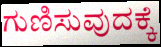
ಗುಣಿಸುವುದಕ್ಕೆ